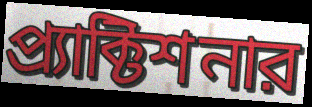
প্র্যাক্টিশনার